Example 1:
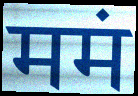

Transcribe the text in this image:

ममं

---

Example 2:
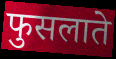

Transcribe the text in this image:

फुसलाते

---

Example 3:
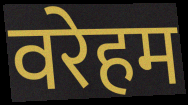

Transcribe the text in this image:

वरेहम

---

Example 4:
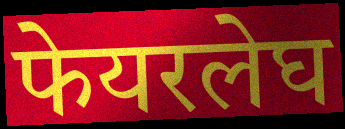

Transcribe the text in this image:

फेयरलेघ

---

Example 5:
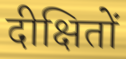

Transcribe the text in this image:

दीक्षितों